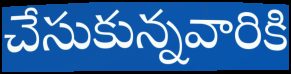
చేసుకున్నవారికి